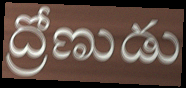
ద్రోణుడు